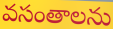
వసంతాలను